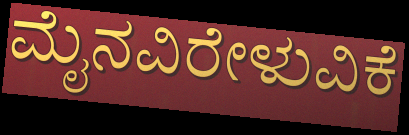
ಮೈನವಿರೇಳುವಿಕೆ